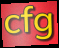
cfg